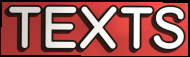
TEXTS